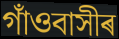
গাঁওবাসীৰ